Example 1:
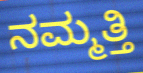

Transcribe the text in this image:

ನಮ್ಮತ್ತಿ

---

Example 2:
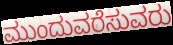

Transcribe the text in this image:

ಮುಂದುವರೆಸುವರು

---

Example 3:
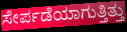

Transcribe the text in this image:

ಸೇರ್ಪಡೆಯಾಗುತ್ತಿತ್ತು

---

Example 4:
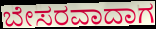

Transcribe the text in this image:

ಬೇಸರವಾದಾಗ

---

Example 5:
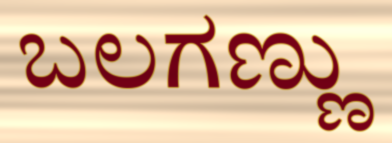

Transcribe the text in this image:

ಬಲಗಣ್ಣು